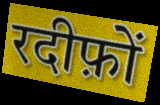
रदीफ़ों